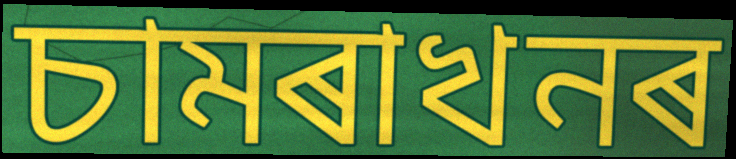
চামৰাখনৰ